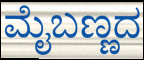
ಮೈಬಣ್ಣದ